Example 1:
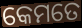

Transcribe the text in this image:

କେମତେ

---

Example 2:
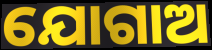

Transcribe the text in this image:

ଯୋଗାଅ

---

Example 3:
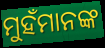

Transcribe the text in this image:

ମୁହଁମାନଙ୍କ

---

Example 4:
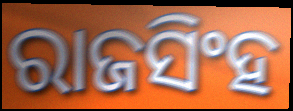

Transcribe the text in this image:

ରାଜସିଂହ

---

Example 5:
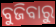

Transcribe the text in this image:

ବୁଜିବାରୁ